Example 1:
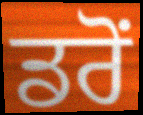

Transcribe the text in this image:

ਡਰੋਂ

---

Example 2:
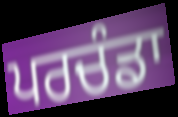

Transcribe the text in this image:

ਪਰਚੰਡਾ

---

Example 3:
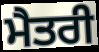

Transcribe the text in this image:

ਮੈਤਰੀ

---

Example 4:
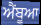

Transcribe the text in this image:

ਐਂਬੂਆ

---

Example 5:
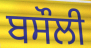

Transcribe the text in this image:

ਬਸੌਲੀ